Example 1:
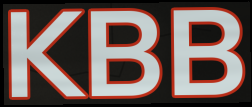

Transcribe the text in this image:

KBB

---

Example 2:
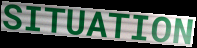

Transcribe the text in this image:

SITUATION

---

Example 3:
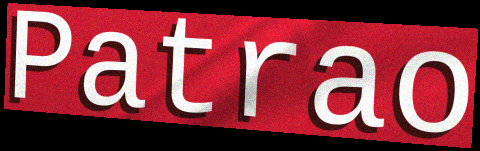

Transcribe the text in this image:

Patrao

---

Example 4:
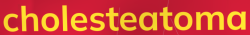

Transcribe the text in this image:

cholesteatoma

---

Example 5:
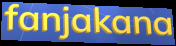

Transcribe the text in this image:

fanjakana